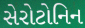
સેરોટોનિન